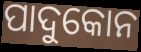
ପାଦୁକୋନ